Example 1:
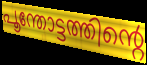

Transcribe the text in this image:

പൂന്തോട്ടത്തിന്റെ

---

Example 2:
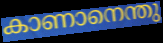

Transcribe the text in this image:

കാണാനെന്തു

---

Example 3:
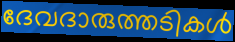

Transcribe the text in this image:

ദേവദാരുത്തടികൾ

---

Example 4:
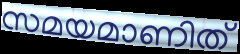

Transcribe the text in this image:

സമയമാണിത്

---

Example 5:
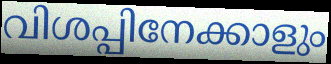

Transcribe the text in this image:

വിശപ്പിനേക്കാളും